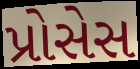
પ્રોસેસ